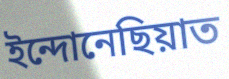
ইন্দোনেছিয়াত